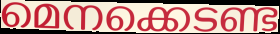
മെനക്കെടണ്ട